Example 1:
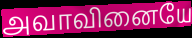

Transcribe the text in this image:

அவாவினையே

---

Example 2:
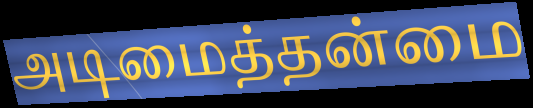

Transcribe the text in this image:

அடிமைத்தன்மை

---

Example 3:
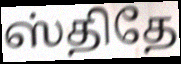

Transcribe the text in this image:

ஸ்திதே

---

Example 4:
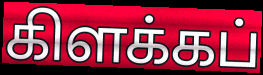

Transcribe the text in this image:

கிளக்கப்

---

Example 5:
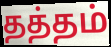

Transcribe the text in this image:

தத்தம்